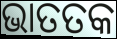
ଭାତତକ